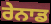
ਰੇਨਾਡ